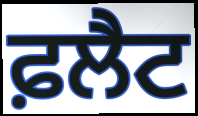
ਫ਼ਲੈਟ